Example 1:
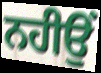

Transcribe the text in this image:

ਨਹੀਉਂ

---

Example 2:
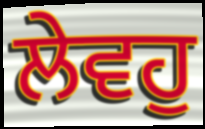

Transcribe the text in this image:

ਲੇਵਹੁ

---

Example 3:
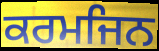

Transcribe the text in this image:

ਕਰਮਜਿਨ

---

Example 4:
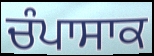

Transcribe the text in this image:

ਚੰਪਾਸਾਕ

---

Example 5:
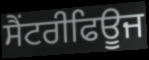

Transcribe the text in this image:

ਸੈਂਟਰੀਫਿਊਜ